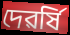
দেৱৰ্ষি